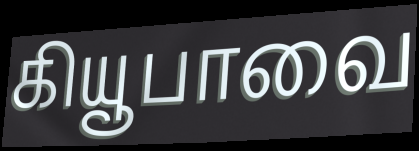
கியூபாவை